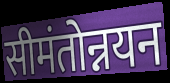
सीमंतोन्नयन